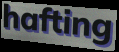
hafting